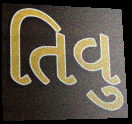
તિવુ